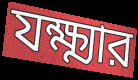
যক্ষ্মার